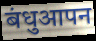
बंधुआपन